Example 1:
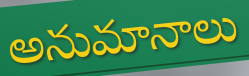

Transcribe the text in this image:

అనుమానాలు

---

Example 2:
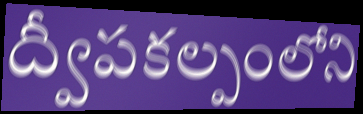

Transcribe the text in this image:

ద్వీపకల్పంలోని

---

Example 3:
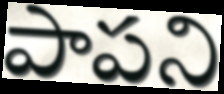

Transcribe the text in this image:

పాపని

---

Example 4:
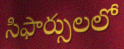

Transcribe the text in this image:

సిఫార్సులలో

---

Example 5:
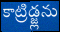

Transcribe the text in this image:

కాట్రిడ్జ్లను